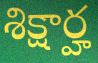
శిక్షార్హ